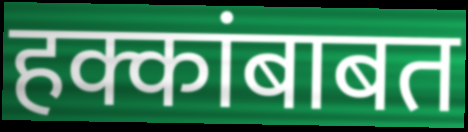
हक्कांबाबत